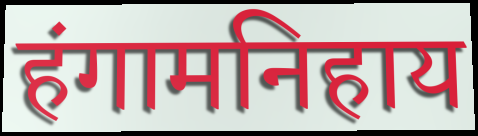
हंगामनिहाय